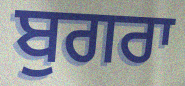
ਬੁਗਰਾ